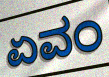
ಏವಂ